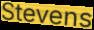
Stevens